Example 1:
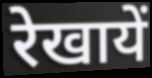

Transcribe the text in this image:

रेखायें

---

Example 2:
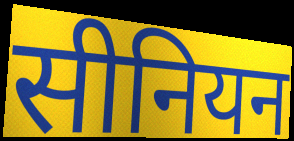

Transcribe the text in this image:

सीनियन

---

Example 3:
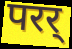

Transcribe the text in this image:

परर्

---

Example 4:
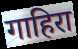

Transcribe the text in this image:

गाहिरा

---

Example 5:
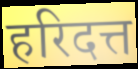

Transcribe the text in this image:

हरिदत्त